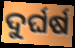
ଦୁର୍ଘର୍ଷ